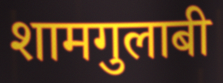
शामगुलाबी